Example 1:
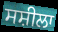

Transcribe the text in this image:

ਸਸ਼ੀਲਾ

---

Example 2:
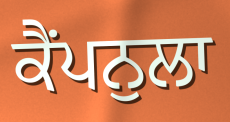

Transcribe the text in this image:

ਕੈਂਪਨੁਲਾ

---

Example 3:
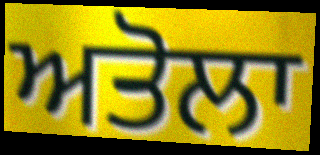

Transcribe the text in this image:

ਅਤੋਲਾ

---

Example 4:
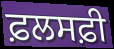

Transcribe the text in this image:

ਫ਼ਲਸਫ਼ੀ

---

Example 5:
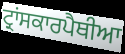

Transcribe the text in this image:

ਟ੍ਰਾਂਸਕਾਰਪੈਥੀਆ